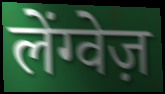
लेंग्वेज़